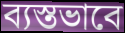
ব্যস্তভাবে